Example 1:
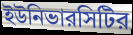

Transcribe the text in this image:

ইউনিভারসিটির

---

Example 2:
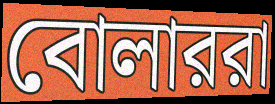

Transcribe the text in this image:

বোলাররা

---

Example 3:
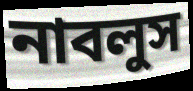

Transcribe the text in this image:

নাবলুস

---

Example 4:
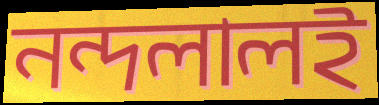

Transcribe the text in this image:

নন্দলালই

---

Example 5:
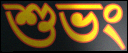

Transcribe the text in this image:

শুভং